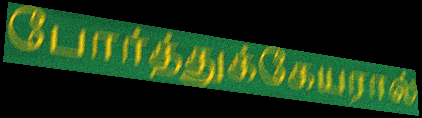
போர்த்துக்கேயரால்